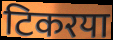
टिकरया